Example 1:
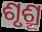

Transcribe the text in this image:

ଶୃଶ୍ରୂ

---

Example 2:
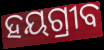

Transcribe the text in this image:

ହୟଗ୍ରୀବ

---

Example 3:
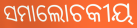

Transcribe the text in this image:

ସମାଲୋଚକୀୟ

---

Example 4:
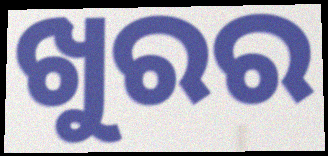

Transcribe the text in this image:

ଖୁରର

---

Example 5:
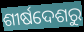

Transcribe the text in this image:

ଶୀର୍ଷଦେଶରୁ